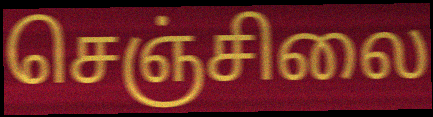
செஞ்சிலை